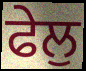
ਫੇਲੁ